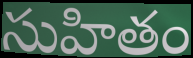
సుహితం